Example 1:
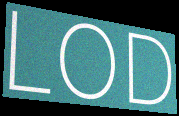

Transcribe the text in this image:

LOD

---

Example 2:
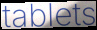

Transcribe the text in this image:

tablets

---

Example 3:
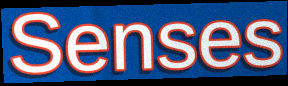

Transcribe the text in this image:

Senses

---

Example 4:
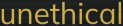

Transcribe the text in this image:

unethical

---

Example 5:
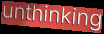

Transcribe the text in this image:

unthinking